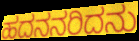
ಹದನನರಿದನು